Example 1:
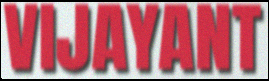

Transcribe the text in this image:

VIJAYANT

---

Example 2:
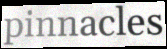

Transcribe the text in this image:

pinnacles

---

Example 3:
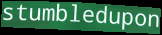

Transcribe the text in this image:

stumbledupon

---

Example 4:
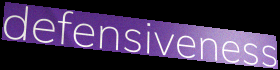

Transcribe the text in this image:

defensiveness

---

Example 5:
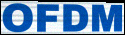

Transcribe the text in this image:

OFDM